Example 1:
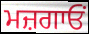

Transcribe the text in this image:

ਮਜ਼ਗਾਓਂ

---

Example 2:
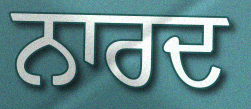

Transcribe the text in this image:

ਨਾਰਦ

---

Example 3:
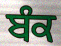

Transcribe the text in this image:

ਬੰਕ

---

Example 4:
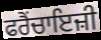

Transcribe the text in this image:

ਫਰੈਂਚਾਇਜ਼ੀ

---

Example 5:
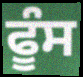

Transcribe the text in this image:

ਫੂੰਸ